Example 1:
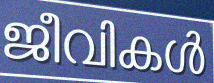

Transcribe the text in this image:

ജീവികൾ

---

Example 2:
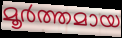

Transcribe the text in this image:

മൂർത്തമായ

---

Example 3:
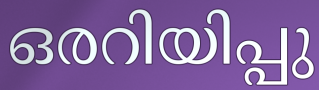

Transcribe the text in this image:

ഒരറിയിപ്പു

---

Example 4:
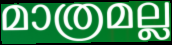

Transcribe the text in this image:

മാത്രമല്ല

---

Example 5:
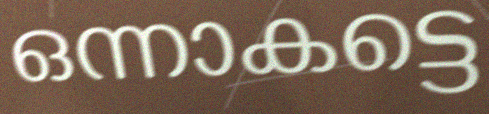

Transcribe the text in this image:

ഒന്നാകട്ടെ